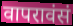
वापरावंसं